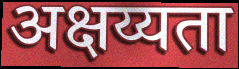
अक्षय्यता